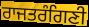
ਰਾਜਤਰੰਗਿਣੀ